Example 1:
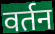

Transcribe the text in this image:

वर्तन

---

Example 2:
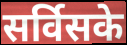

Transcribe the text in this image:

सर्विसके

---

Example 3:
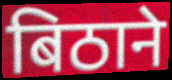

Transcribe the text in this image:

बिठाने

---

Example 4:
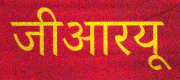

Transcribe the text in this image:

जीआरयू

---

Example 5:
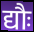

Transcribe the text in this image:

द्यौः